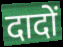
दादों